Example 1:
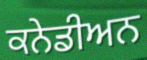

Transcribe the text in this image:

ਕਨੇਡੀਅਨ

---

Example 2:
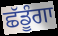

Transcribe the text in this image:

ਛੱਡੂੰਗਾ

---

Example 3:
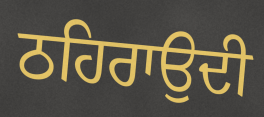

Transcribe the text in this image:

ਠਹਿਰਾਉਦੀ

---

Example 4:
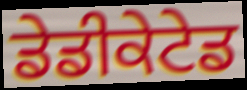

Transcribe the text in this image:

ਡੇਡੀਕੇਟੇਡ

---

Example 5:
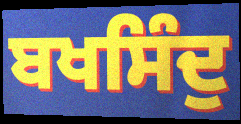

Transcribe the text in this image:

ਬਖਸਿੰਦੁ